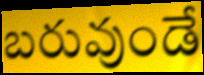
బరువుండే